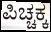
ಪಿಚ್ಚಕ್ಕ